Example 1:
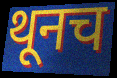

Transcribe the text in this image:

थूनच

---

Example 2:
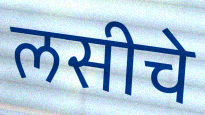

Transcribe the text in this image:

लसीचे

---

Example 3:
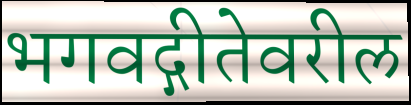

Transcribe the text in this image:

भगवद्गीतेवरील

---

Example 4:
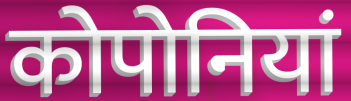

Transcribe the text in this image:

कोपोनियां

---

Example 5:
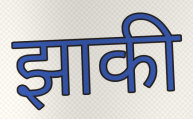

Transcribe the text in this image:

झाकी